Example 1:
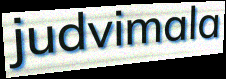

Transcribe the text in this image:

judvimala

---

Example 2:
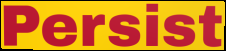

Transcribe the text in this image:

Persist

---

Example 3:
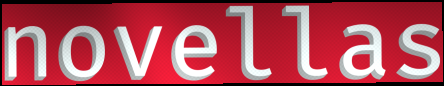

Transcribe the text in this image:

novellas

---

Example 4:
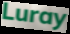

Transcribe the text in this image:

Luray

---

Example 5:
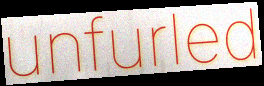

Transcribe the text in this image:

unfurled